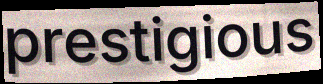
prestigious